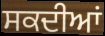
ਸਕਦੀਆਂ